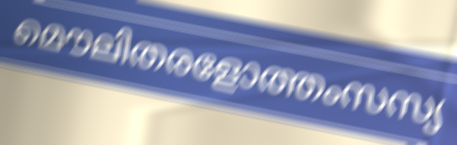
മൌലിതരളോത്തംസസ്യ